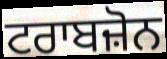
ਟਰਾਬਜ਼ੋਨ